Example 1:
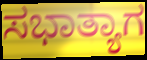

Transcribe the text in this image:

ಸಭಾತ್ಯಾಗ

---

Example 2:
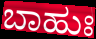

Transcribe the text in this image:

ಬಾಹುಃ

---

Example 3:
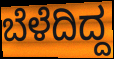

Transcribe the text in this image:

ಬೆಳೆದಿದ್ದ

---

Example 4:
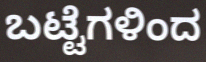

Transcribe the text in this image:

ಬಟ್ಟೆಗಳಿಂದ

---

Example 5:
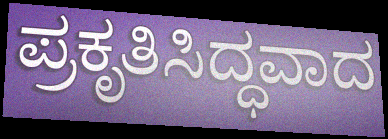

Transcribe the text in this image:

ಪ್ರಕೃತಿಸಿದ್ಧವಾದ